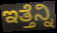
ಇತ್ತೆನ್ನಿ